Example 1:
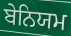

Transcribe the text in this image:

ਬੇਨਿਯਮ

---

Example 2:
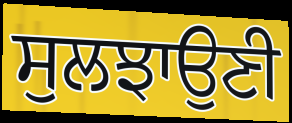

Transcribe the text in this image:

ਸੁਲਝਾਉਣੀ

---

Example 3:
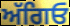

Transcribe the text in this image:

ਅੱਗਿਓ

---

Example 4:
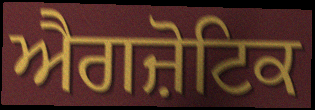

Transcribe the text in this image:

ਐਗਜ਼ੋਟਿਕ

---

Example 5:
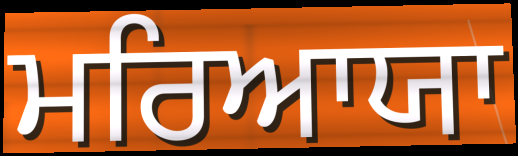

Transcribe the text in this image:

ਮਰਿਆਯਾ